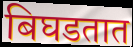
बिघडतात